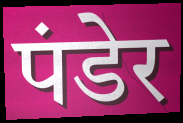
पंडेर